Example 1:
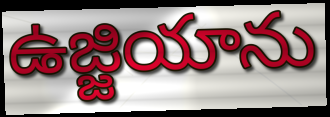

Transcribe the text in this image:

ఉజ్జియాను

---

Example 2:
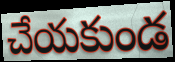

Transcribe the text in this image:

చేయకుండ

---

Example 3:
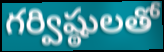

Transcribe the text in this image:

గర్విష్ఠులతో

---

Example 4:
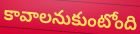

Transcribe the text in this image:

కావాలనుకుంటోంది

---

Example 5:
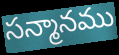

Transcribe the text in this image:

సన్మానము